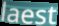
laest